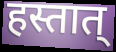
हस्तात्